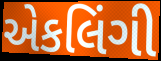
એકલિંગી